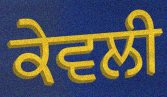
ਕੇਵਲੀ